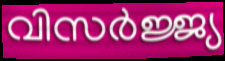
വിസർജ്ജ്യ